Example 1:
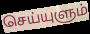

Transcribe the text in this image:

செய்யுளும்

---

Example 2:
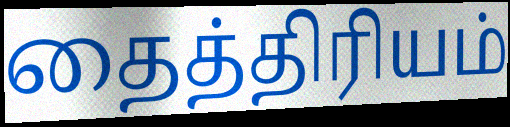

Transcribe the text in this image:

தைத்திரியம்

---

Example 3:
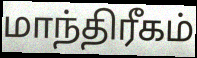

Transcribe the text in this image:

மாந்திரீகம்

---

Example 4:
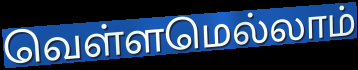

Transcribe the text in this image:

வெள்ளமெல்லாம்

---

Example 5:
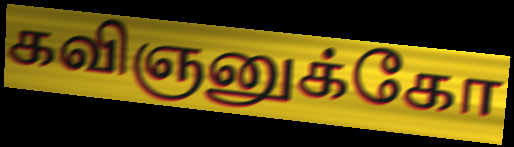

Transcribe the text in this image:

கவிஞனுக்கோ